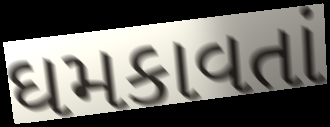
ઘમકાવતાં